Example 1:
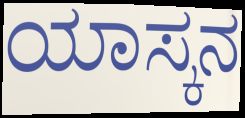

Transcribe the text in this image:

ಯಾಸ್ಕನ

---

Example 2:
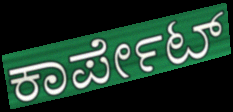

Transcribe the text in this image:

ಕಾರ್ಪೇಟ್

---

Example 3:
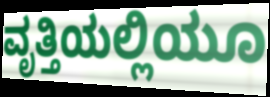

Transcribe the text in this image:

ವೃತ್ತಿಯಲ್ಲಿಯೂ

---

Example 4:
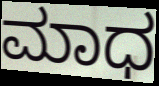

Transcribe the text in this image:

ಮಾಧ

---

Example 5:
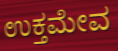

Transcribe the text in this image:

ಉಕ್ತಮೇವ